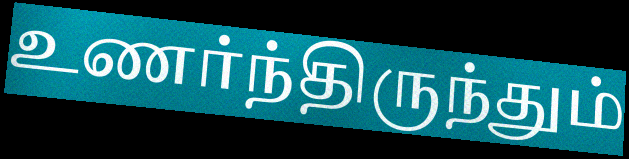
உணர்ந்திருந்தும்